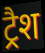
ट्रैश